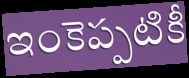
ఇంకెప్పటికీ